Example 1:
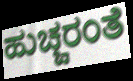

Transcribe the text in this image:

ಹುಚ್ಚರಂತೆ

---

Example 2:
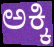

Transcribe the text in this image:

ಅಕ್ಕಿ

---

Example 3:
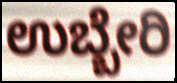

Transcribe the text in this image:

ಉಬ್ಬೇರಿ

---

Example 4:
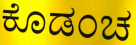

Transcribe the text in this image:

ಕೊಡಂಚ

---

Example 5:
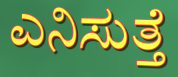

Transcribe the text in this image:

ಎನಿಸುತ್ತೆ